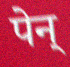
पेन्